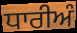
ਧਾਰੀਅੰ